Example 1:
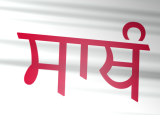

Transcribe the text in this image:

ਸਾਥੰ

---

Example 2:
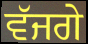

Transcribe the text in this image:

ਵੱਜਗੇ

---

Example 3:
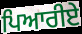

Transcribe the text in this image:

ਪਿਆਰੀਏ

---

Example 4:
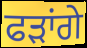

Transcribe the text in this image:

ਫੜਾਂਗੇ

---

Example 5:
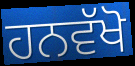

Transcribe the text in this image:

ਹਨਵੱਖੋ